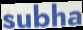
subha